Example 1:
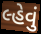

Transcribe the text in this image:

લ્હેવું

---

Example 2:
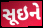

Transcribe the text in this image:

સૂઇને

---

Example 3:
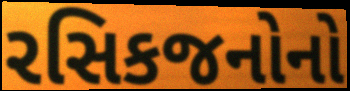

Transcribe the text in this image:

રસિકજનોનો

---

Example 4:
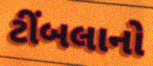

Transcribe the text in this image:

ટીંબલાનો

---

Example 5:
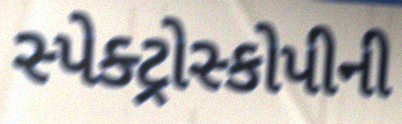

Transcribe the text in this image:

સ્પેક્ટ્રોસ્કોપીની